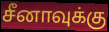
சீனாவுக்கு